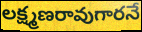
లక్ష్మణరావుగారనే